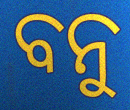
ବନୁ